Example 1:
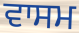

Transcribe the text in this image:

ਵਾਸਮ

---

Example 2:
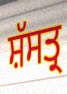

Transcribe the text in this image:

ਸ਼ੱਸਤ੍ਰ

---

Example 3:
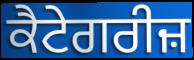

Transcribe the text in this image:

ਕੈਟੇਗਰੀਜ਼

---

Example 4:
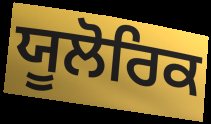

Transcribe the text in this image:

ਯੂਲੋਰਿਕ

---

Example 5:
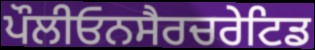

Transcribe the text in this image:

ਪੌਲੀਓਨਸੈਰਚਰੇਟਿਡ